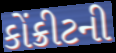
કોંક્રીટની